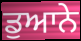
ਡੁਆਨੇ